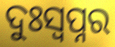
ଦୁଃସ୍ବପ୍ନର